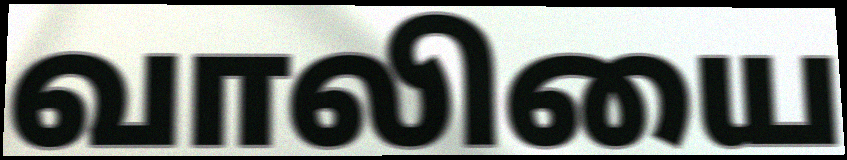
வாலியை